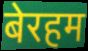
बेरहम